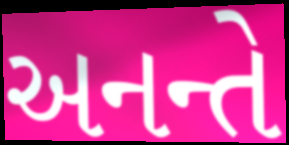
અનન્તે